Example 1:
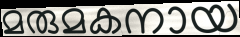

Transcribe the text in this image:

മരുമകനായ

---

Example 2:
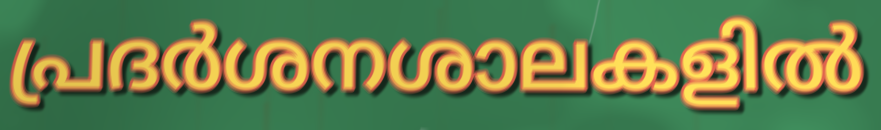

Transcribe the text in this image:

പ്രദർശനശാലകളിൽ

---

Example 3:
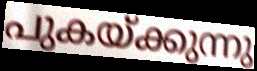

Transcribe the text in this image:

പുകയ്ക്കുന്നു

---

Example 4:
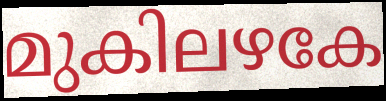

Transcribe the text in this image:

മുകിലഴകേ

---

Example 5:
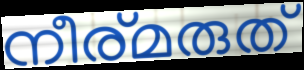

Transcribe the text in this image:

നീര്മരുത്